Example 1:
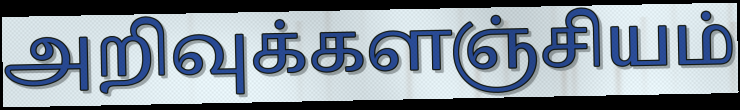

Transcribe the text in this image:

அறிவுக்களஞ்சியம்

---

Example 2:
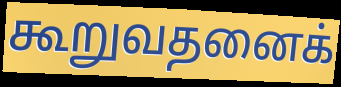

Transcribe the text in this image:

கூறுவதனைக்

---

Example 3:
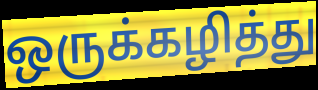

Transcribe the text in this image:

ஒருக்கழித்து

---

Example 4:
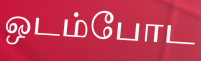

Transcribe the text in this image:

ஒடம்போட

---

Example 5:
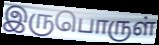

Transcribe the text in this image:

இருபொருள்